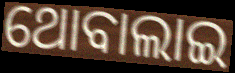
ଥୋବାଲାଇ